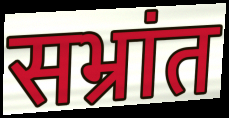
सभ्रांत